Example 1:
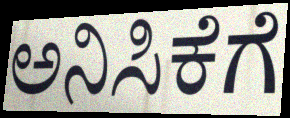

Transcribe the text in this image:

ಅನಿಸಿಕೆಗೆ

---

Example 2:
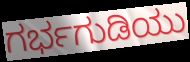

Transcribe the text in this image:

ಗರ್ಭಗುಡಿಯು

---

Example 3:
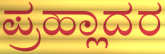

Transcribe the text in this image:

ಪ್ರಹ್ಲಾದರ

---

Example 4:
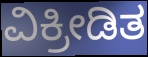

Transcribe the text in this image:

ವಿಕ್ರೀಡಿತ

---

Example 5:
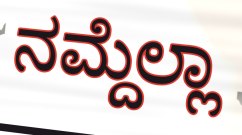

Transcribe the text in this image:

ನಮ್ದೆಲ್ಲಾ